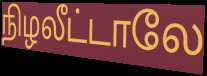
நிழலீட்டாலே